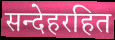
सन्देहरहित